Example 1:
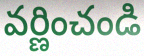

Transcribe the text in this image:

వర్ణించండి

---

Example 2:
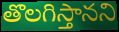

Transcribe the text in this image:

తొలగిస్తానని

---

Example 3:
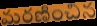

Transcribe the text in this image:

మరణించిన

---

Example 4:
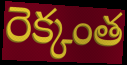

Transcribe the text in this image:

రెక్కంత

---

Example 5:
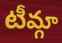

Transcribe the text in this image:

టీమ్గా